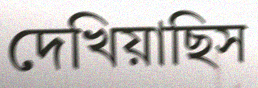
দেখিয়াছিস